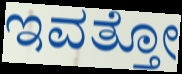
ಇವತ್ತೋ